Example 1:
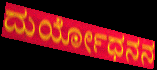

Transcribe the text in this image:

ದುರ್ಯೋಧನನ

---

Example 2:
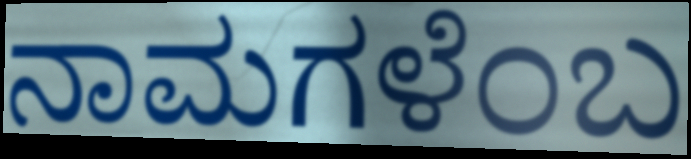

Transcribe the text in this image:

ನಾಮಗಳೆಂಬ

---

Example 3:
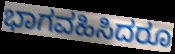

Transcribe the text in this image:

ಭಾಗವಹಿಸಿದರೂ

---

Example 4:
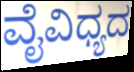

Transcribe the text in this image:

ವೈವಿಧ್ಯದ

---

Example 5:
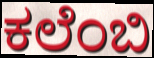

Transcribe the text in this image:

ಕಲೆಂಬಿ